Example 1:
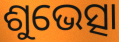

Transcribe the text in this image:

ଶୁଭେତ୍ସା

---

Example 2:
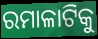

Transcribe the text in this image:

ରମାଳାଟିକୁ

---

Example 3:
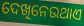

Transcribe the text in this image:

ଦେଖିନେଉଥାଏ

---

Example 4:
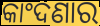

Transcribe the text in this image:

କାଂଦଣାର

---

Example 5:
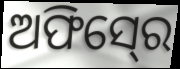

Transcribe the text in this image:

ଅଫିସ୍‍ରେ